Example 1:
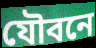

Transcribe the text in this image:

যৌবনে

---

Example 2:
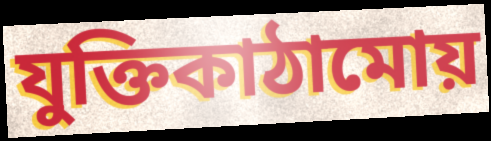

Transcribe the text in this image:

যুক্তিকাঠামোয়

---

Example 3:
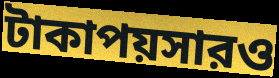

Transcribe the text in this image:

টাকাপয়সারও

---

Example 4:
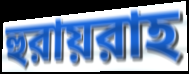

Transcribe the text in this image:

হুরায়রাহ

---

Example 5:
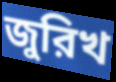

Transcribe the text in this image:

জুরিখ